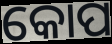
କୋପ